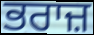
ਭਰਾਜ਼